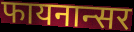
फायनान्सर